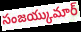
సంజయ్కుమార్